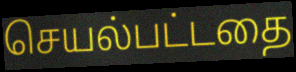
செயல்பட்டதை